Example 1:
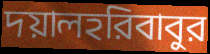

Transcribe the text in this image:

দয়ালহরিবাবুর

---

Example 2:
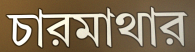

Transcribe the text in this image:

চারমাথার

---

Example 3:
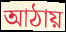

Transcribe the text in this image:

আঠায়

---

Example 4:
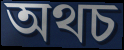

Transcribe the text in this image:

অথচ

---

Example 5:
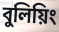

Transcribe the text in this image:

বুলিয়িং